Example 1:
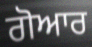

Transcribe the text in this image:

ਗੋਆਰ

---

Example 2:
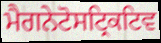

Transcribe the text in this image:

ਮੈਗਨੇਟੋਸਟ੍ਰਿਕਟਿਵ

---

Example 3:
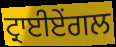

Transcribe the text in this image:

ਟ੍ਰਾਈਏਂਗਲ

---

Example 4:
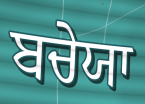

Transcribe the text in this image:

ਬਚੇਯਾ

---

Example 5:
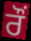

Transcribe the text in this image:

ਰੌਂ